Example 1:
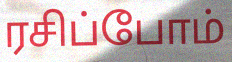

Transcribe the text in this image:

ரசிப்போம்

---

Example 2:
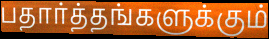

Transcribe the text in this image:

பதார்த்தங்களுக்கும்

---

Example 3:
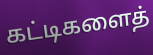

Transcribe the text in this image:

கட்டிகளைத்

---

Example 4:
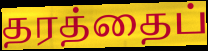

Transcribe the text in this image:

தரத்தைப்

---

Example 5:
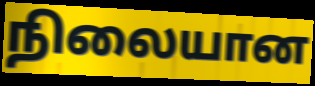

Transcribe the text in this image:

நிலையான